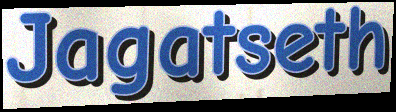
Jagatseth